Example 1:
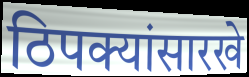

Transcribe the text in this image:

ठिपक्यांसारखे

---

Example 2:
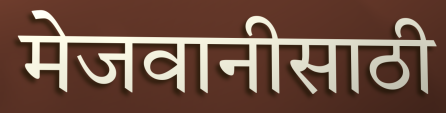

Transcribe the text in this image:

मेजवानीसाठी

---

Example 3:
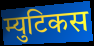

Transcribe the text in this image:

म्युटिकस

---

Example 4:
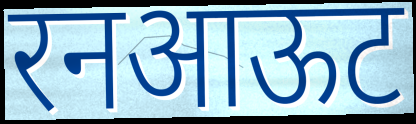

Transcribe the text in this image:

रनआऊट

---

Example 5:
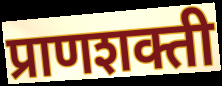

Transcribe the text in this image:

प्राणशक्ती